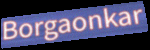
Borgaonkar